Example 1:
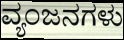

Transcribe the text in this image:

ವ್ಯಂಜನಗಳು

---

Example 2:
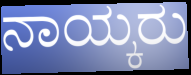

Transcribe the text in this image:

ನಾಯ್ಕರು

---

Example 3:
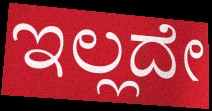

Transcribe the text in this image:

ಇಲ್ಲದೇ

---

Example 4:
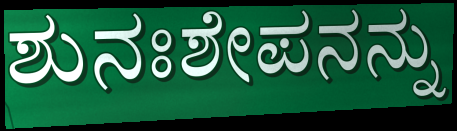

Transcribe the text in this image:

ಶುನಃಶೇಪನನ್ನು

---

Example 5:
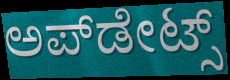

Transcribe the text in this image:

ಅಪ್‌ಡೇಟ್ಸ್